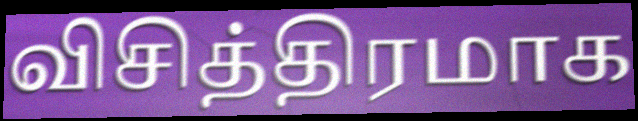
விசித்திரமாக